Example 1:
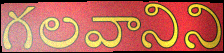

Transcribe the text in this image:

గలవానిని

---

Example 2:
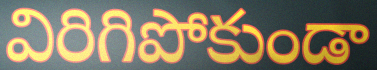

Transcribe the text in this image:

విరిగిపోకుండా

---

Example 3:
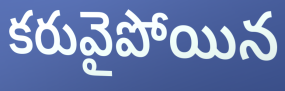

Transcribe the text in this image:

కరువైపోయిన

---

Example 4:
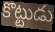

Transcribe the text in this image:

కొట్టుడు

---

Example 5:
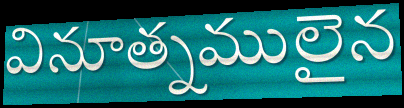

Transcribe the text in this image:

వినూత్నములైన